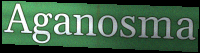
Aganosma